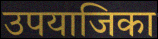
उपयाजिका